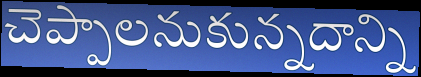
చెప్పాలనుకున్నదాన్ని